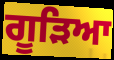
ਗੂੜਿਆ